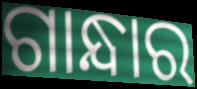
ଗାନ୍ଧାର